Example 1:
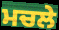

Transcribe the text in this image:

ਮਚਲੇ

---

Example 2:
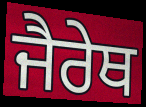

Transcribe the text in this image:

ਜੈਰੇਥ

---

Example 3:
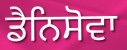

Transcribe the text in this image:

ਡੈਨਿਸੋਵਾ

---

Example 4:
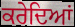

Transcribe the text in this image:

ਕਰੇਦਿਆਂ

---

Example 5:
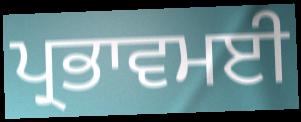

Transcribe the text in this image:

ਪ੍ਰਭਾਵਮਈ